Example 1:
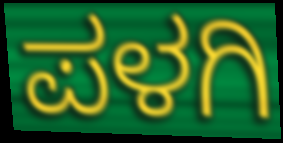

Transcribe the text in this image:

ಪಳಗಿ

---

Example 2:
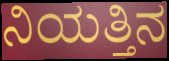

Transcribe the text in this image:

ನಿಯತ್ತಿನ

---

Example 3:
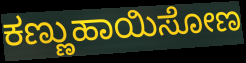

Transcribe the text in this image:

ಕಣ್ಣುಹಾಯಿಸೋಣ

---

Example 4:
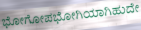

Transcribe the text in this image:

ಭೋಗೋಪಭೋಗಿಯಾಗಿಹುದೇ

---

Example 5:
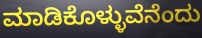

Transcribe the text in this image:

ಮಾಡಿಕೊಳ್ಳುವೆನೆಂದು